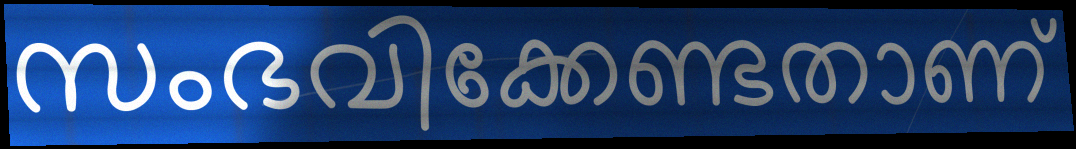
സംഭവിക്കേണ്ടതാണ്